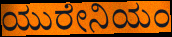
ಯುರೇನಿಯಂ